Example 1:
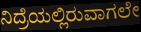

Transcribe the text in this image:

ನಿದ್ರೆಯಲ್ಲಿರುವಾಗಲೇ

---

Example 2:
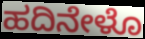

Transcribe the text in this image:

ಹದಿನೇಳೊ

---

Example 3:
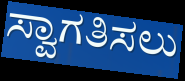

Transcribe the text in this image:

ಸ್ವಾಗತಿಸಲು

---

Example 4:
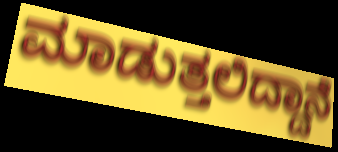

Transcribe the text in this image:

ಮಾಡುತ್ತಲಿದ್ದಾನೆ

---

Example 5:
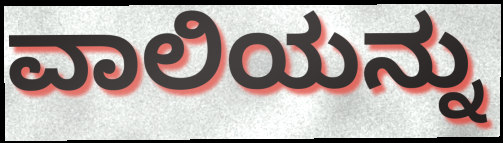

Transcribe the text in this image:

ವಾಲಿಯನ್ನು